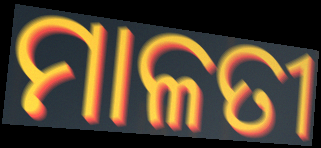
ମାଳତୀ